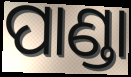
ପାଣ୍ଡା